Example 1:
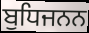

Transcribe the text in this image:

ਬੁਧਿਜਨਨ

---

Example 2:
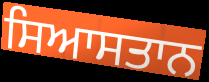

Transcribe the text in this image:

ਸਿਆਸਤਾਨ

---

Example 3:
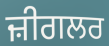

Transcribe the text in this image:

ਜ਼ੀਗਲਰ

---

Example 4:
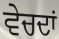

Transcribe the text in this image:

ਵੇਚਦਾਂ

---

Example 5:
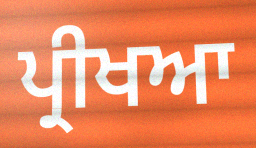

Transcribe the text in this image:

ਪ੍ਰੀਖਆ